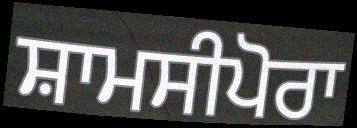
ਸ਼ਾਮਸੀਪੋਰਾ